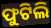
ଫୁଟିଲି